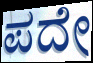
ಪದೇ